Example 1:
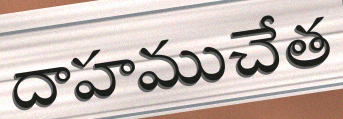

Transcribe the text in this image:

దాహముచేత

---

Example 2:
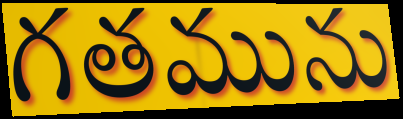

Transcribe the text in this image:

గతమును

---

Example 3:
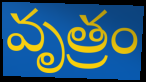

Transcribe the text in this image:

వృత్రం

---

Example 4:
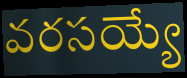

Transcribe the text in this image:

వరసయ్యే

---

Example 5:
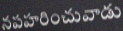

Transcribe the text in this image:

నపహరించువాడు